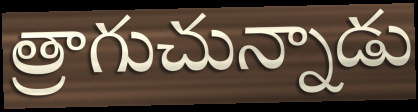
త్రాగుచున్నాడు